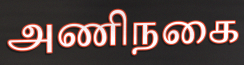
அணிநகை